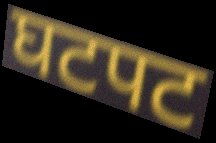
घटपट